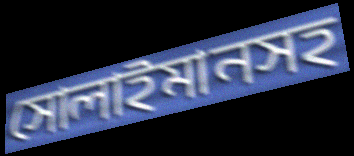
সোলাইমানসহ